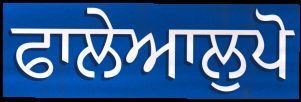
ਫਾਲੇਆਲੁਪੋ